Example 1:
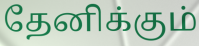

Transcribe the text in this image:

தேனிக்கும்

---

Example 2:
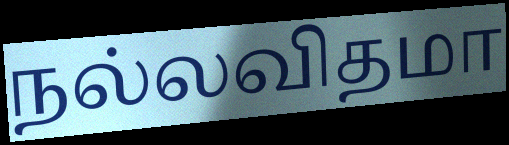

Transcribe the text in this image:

நல்லவிதமா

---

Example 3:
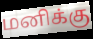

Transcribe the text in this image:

மனிக்கு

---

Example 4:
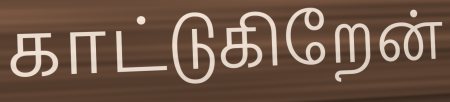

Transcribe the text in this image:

காட்டுகிறேன்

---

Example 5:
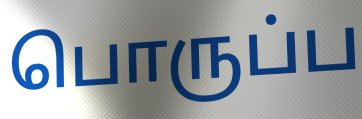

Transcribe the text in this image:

பொருப்ப